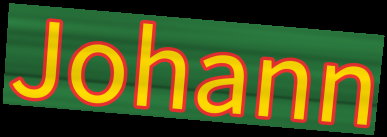
Johann